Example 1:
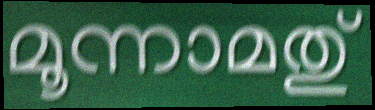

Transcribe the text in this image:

മൂന്നാമതു്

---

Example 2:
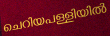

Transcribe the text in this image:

ചെറിയപള്ളിയിൽ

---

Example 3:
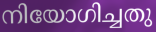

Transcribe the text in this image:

നിയോഗിച്ചതു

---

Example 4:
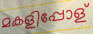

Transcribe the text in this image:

മകളിപ്പോള്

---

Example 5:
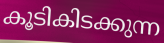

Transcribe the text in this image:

കൂടികിടക്കുന്ന